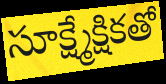
సూక్ష్మేక్షికతో